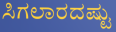
ಸಿಗಲಾರದಷ್ಟು